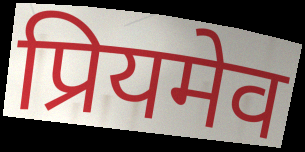
प्रियमेव